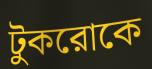
টুকরোকে